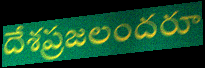
దేశప్రజలందరూ